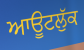
ਆਊਟਲੁੱਕ